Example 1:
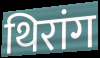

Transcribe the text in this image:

थिरांग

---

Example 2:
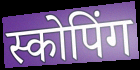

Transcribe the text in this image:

स्कोपिंग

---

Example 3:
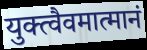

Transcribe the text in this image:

युक्त्वैवमात्मानं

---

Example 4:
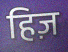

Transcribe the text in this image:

हिज़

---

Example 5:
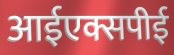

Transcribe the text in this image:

आईएक्सपीई